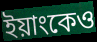
ইয়াংকেও